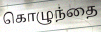
கொழுந்தை